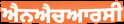
ਐਨਐਚਆਰਸੀ